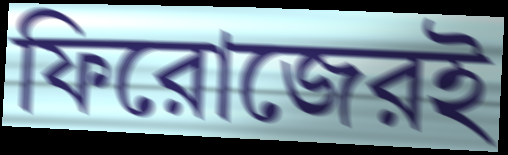
ফিরোজেরই